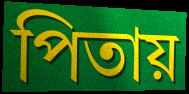
পিতায়